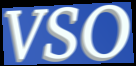
VSO